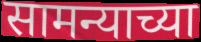
सामन्याच्या